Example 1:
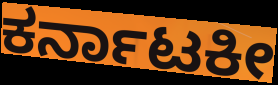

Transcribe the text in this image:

ಕರ್ನಾಟಕೀ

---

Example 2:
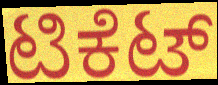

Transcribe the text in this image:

ಟಿಕೆಟ್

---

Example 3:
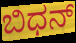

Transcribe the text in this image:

ಬಿಧನ್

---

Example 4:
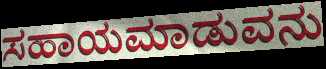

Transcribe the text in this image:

ಸಹಾಯಮಾಡುವನು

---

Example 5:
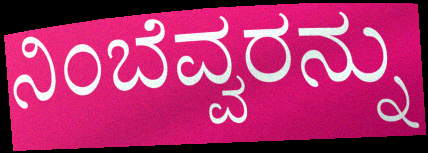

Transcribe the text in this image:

ನಿಂಬೆವ್ವರನ್ನು